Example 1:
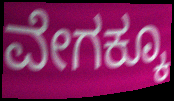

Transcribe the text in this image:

ವೇಗಕ್ಕೂ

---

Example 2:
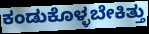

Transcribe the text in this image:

ಕಂಡುಕೊಳ್ಳಬೇಕಿತ್ತು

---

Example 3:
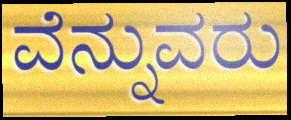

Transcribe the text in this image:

ವೆನ್ನುವರು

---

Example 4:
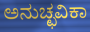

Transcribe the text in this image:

ಅನುಚ್ಛವಿಕಾ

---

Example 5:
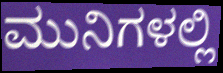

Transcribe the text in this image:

ಮುನಿಗಳಲ್ಲಿ